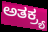
ಅತಕ್ರ್ಯ